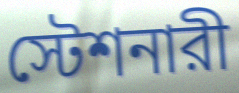
স্টেশনারী